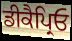
ਡੀਕੈਪ੍ਰਿਓ